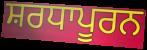
ਸ਼ਰਧਾਪੂਰਨ